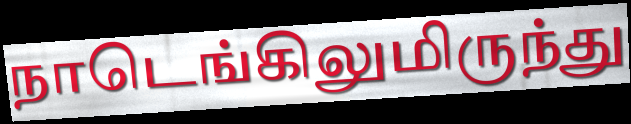
நாடெங்கிலுமிருந்து